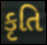
કૃતિ